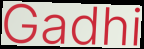
Gadhi